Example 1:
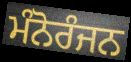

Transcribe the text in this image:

ਮੰਨੋਰੰਜਨ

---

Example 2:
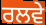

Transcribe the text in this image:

ਰਲਵੇ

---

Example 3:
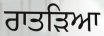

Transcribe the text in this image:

ਰਾਤੜਿਆ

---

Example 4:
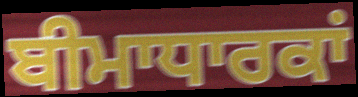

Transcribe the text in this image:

ਬੀਮਾਧਾਰਕਾਂ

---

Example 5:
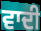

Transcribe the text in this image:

ਵਾਦੀ